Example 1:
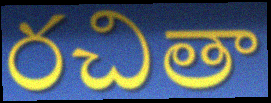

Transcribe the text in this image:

రచితా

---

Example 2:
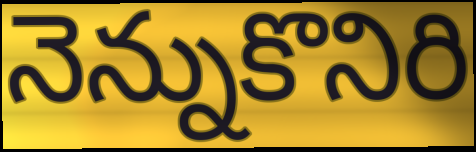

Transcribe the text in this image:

నెన్నుకొనిరి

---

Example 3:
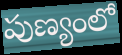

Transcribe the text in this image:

పుణ్యంలో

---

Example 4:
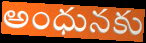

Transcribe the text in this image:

అంధునకు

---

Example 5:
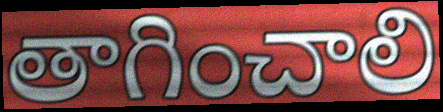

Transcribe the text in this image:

తాగించాలి